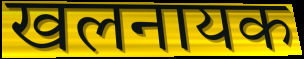
खलनायक